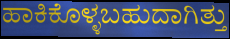
ಹಾಕಿಕೊಳ್ಳಬಹುದಾಗಿತ್ತು